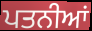
ਪਤਨੀਆਂ